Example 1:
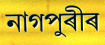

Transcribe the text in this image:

নাগপুৰীৰ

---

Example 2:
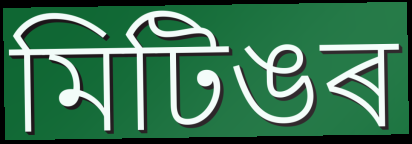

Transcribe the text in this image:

মিটিঙৰ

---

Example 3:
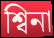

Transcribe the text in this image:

শ্বিনা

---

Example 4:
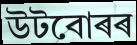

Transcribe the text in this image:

উটবোৰৰ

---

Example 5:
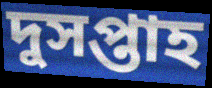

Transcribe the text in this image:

দুসপ্তাহ